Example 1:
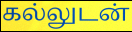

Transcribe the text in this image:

கல்லுடன்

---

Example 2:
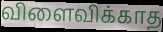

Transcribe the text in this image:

விளைவிக்காத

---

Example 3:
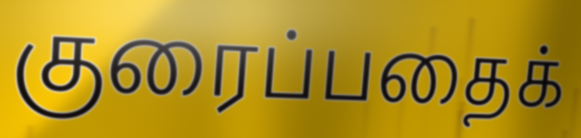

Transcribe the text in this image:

குரைப்பதைக்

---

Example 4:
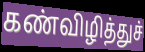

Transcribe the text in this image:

கண்விழித்துச்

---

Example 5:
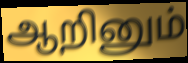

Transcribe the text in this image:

ஆறினும்